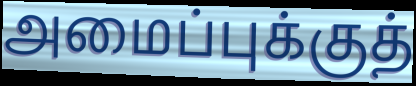
அமைப்புக்குத்